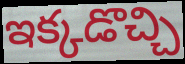
ఇక్కడొచ్చి